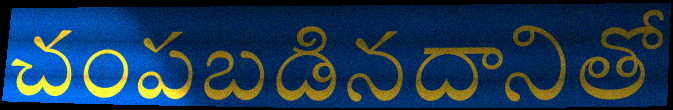
చంపబడినదానితో